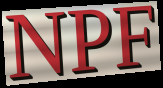
NPF